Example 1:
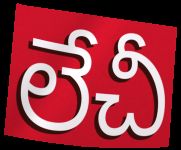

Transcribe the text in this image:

లేచీ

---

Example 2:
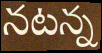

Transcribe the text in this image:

నటన్న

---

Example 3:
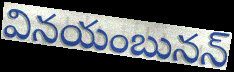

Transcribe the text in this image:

వినయంబునన్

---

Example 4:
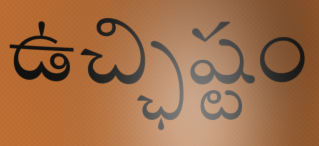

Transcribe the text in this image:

ఉచ్ఛిష్టం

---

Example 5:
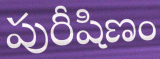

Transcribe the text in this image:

పురీషిణం